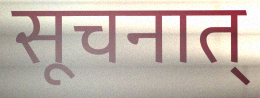
सूचनात्